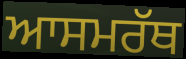
ਆਸਮਰੱਥ